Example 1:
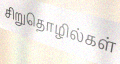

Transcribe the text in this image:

சிறுதொழில்கள்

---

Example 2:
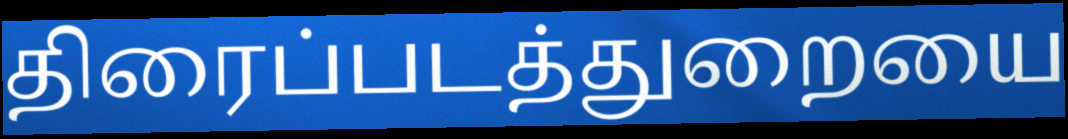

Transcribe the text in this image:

திரைப்படத்துறையை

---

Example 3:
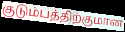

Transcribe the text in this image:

குடும்பத்திற்குமான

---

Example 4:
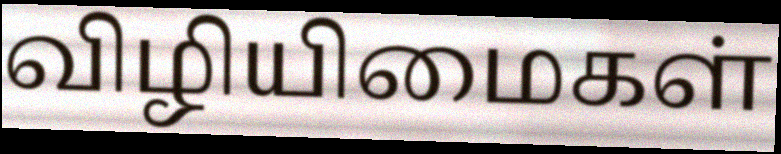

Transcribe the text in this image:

விழியிமைகள்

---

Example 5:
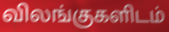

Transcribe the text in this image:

விலங்குகளிடம்